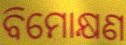
ବିମୋକ୍ଷଣ